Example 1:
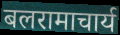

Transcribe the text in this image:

बलरामाचार्य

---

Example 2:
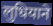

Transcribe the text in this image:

लुधियाने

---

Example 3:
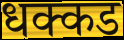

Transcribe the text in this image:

धक्कड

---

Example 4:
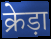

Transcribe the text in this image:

क्रेड़ा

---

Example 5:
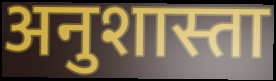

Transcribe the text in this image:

अनुशास्ता